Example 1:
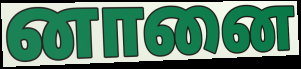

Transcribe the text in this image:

னானை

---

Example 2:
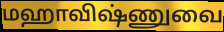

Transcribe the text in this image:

மஹாவிஷ்ணுவை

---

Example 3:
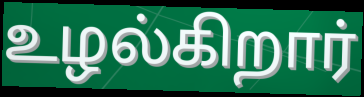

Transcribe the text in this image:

உழல்கிறார்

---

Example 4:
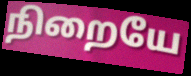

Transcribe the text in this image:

நிறையே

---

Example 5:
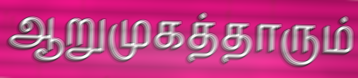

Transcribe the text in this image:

ஆறுமுகத்தாரும்